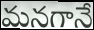
మనగానే